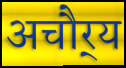
अचौर्य